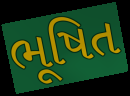
ભૂષિત